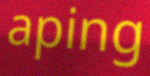
aping